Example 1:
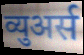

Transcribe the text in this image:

व्युअर्स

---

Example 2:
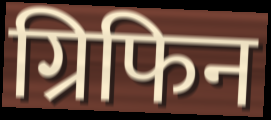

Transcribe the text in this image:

ग्रिफिन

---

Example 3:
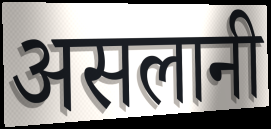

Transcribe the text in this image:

असलानी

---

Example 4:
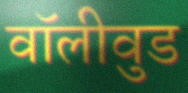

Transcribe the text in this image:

वॉलीवुड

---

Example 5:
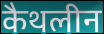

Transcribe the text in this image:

कैथलीन